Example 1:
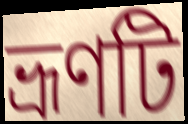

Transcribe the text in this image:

ভ্রূণটি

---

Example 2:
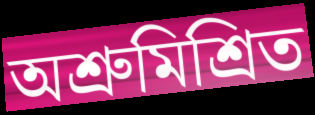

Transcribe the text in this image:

অশ্রুমিশ্রিত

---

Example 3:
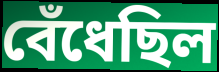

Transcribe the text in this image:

বেঁধেছিল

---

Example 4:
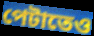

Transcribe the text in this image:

পেটাতেও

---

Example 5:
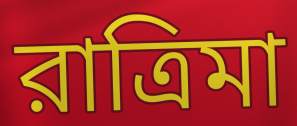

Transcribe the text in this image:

রাত্রিমা